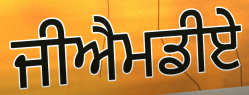
ਜੀਐਮਡੀਏ